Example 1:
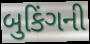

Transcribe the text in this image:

બુકિંગની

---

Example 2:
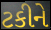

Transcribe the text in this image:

ટકીને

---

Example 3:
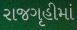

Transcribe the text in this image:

રાજગૃહીમાં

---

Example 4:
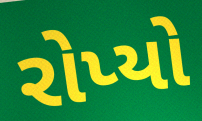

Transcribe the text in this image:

રોપ્યો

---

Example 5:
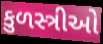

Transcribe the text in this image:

કુળસ્ત્રીઓ